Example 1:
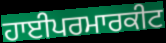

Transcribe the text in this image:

ਹਾਈਪਰਮਾਰਕੀਟ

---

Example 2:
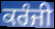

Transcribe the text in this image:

ਕਰੰਜੀ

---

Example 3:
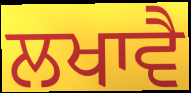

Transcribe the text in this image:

ਲਖਾਵੈ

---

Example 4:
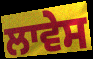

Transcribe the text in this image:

ਲਾਵੇਸ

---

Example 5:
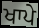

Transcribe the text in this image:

ਖਾਪੇ